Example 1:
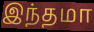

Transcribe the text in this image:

இந்தமா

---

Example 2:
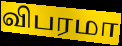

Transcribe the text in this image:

விபரமா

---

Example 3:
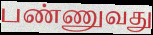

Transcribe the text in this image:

பண்ணுவது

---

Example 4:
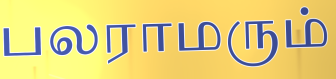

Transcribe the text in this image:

பலராமரும்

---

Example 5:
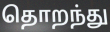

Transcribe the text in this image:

தொறந்து